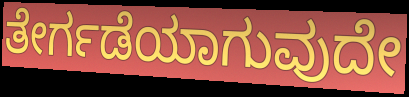
ತೇರ್ಗಡೆಯಾಗುವುದೇ